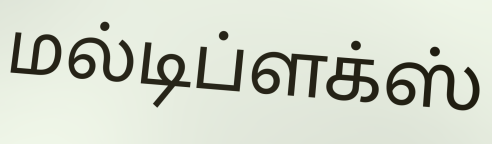
மல்டிப்ளக்ஸ்